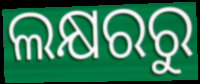
ଲକ୍ଷରରୁ